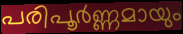
പരിപൂർണ്ണമായും